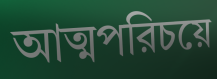
আত্মপরিচয়ে